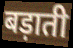
बड़ाती